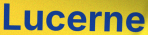
Lucerne